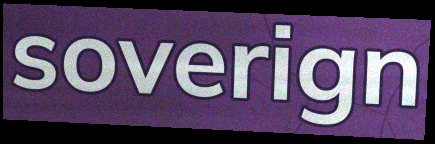
soverign